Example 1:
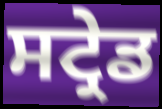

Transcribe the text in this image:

ਸਟ੍ਰੇਡ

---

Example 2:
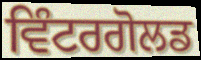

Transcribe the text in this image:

ਵਿੰਟਰਗੋਲਡ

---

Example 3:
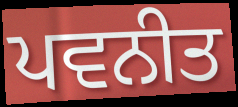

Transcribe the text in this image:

ਪਵਨੀਤ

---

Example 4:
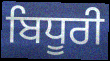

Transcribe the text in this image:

ਬਿਧੂਰੀ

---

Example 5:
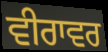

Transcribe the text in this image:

ਵੀਰਾਵਰ